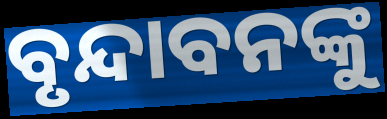
ବୃନ୍ଦାବନଙ୍କୁ